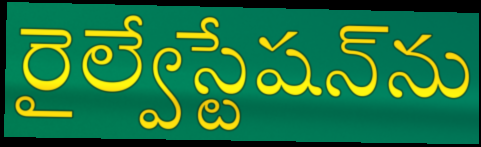
రైల్వేస్టేషన్‌ను